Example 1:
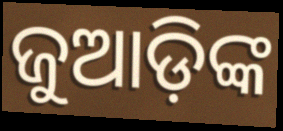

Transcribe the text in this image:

ଜୁଆଡ଼ିଙ୍କ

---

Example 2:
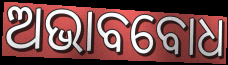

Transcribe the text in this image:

ଅଭାବବୋଧ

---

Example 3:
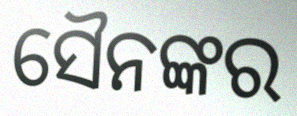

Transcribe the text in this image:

ସୈନଙ୍କର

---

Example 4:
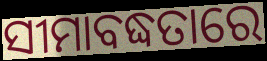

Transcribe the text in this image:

ସୀମାବଦ୍ଧତାରେ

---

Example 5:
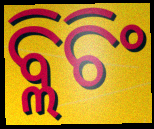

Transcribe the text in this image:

ବ୍ଲିଚିଂ